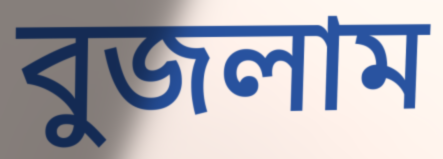
বুজলাম